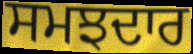
ਸਮਝਦਾਰ